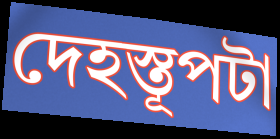
দেহস্তূপটা